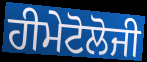
ਹੀਮੇਟੋਲੋਜੀ